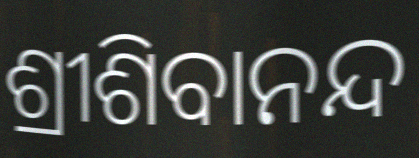
ଶ୍ରୀଶିବାନନ୍ଦ